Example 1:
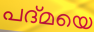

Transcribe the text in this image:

പദ്മയെ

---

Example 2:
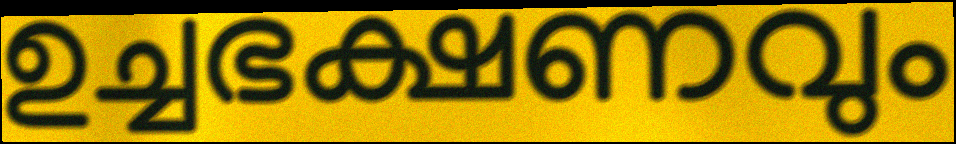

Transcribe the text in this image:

ഉച്ചഭക്ഷണവും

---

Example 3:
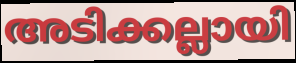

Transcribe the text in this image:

അടിക്കല്ലായി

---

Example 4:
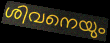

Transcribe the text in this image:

ശിവനെയും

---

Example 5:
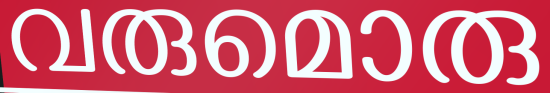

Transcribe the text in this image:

വരുമൊരു